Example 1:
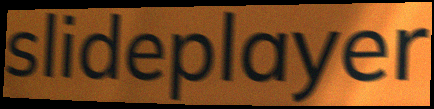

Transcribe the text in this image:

slideplayer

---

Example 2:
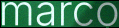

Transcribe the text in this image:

marco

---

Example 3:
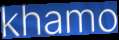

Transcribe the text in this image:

khamo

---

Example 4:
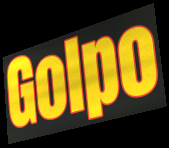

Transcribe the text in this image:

Golpo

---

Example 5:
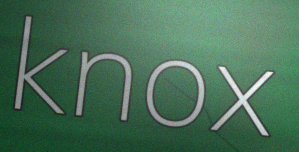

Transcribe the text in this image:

knox